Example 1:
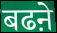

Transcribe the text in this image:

बढऩे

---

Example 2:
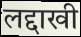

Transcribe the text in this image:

लद्दाखी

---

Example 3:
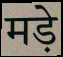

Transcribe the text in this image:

मड़े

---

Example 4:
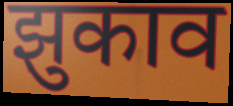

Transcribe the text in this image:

झुकाव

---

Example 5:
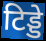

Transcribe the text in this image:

टिड्डे